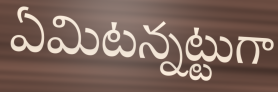
ఏమిటన్నట్టుగా